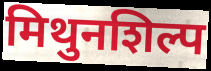
मिथुनशिल्प